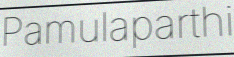
Pamulaparthi